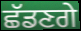
ਛੱਡਣਗੇ